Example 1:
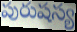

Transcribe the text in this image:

పురుషస్య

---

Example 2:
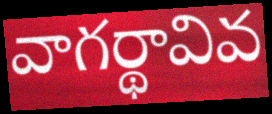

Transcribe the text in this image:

వాగర్థావివ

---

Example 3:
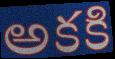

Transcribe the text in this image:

అకకి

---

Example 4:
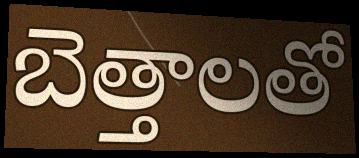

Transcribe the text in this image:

బెత్తాలతో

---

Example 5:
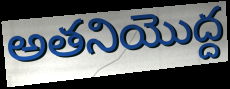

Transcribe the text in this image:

అతనియొద్ద